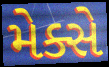
મેક્સે